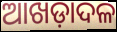
ଆଖଡ଼ାଦଳ